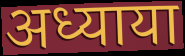
अध्याया